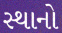
સ્થાનો